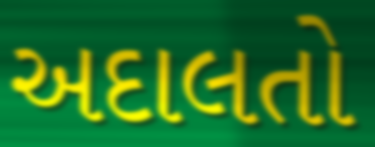
અદાલતો